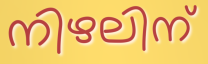
നിഴലിന്